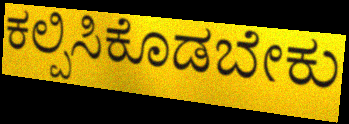
ಕಲ್ಪಿಸಿಕೊಡಬೇಕು